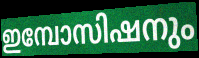
ഇമ്പോസിഷനും